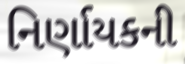
નિર્ણાયકની